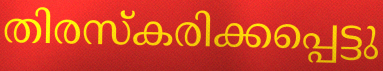
തിരസ്കരിക്കപ്പെട്ടു